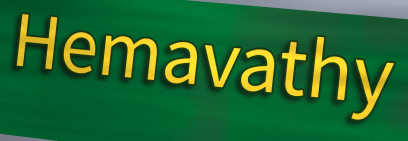
Hemavathy